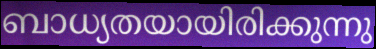
ബാധ്യതയായിരിക്കുന്നു